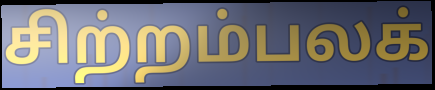
சிற்றம்பலக்